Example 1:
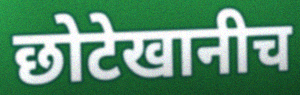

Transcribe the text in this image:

छोटेखानीच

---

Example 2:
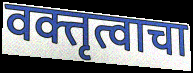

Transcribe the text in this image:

वक्तृत्वाचा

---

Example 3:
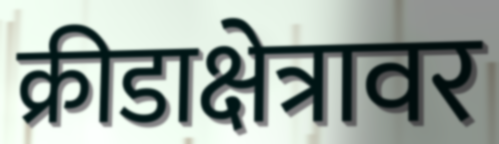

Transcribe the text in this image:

क्रीडाक्षेत्रावर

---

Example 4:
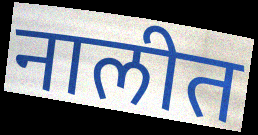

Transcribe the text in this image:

नालीत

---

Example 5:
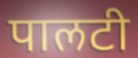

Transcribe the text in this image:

पालटी